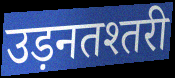
उड़नतश्तरी